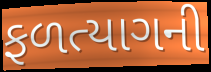
ફળત્યાગની